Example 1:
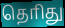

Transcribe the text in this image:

தெரிது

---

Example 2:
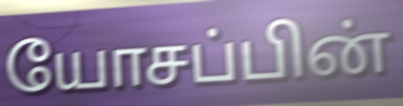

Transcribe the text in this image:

யோசப்பின்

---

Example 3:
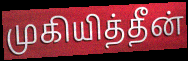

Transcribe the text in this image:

முகியித்தீன்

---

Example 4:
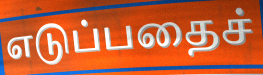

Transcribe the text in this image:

எடுப்பதைச்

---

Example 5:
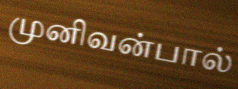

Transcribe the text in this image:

முனிவன்பால்